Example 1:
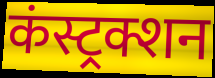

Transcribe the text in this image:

कंस्ट्रक्शन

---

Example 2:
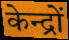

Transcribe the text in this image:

केन्द्रों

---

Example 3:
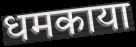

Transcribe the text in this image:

धमकाया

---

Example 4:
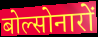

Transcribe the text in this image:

बोल्सोनारों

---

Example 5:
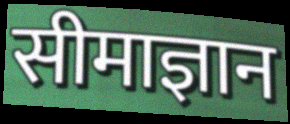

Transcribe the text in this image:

सीमाज्ञान